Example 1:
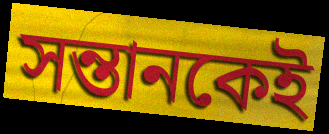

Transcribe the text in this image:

সন্তানকেই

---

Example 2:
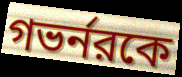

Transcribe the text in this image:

গভর্নরকে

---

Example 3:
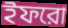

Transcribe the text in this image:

ইফরো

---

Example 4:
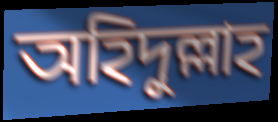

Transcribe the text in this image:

অহিদুল্লাহ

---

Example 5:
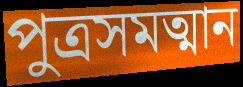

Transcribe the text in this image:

পুত্রসমত্মান